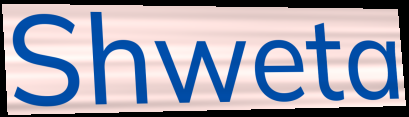
Shweta